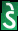
ડે